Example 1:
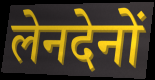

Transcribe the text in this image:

लेनदेनों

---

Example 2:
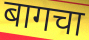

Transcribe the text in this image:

बागचा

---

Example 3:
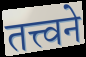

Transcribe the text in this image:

तत्त्वने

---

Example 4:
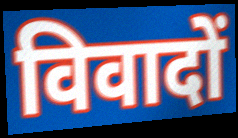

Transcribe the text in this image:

विवादों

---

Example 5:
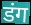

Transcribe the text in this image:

डंग